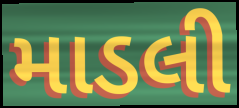
માડલી